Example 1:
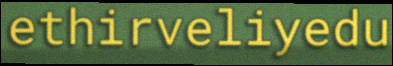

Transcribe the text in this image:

ethirveliyedu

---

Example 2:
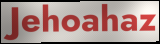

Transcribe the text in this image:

Jehoahaz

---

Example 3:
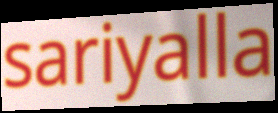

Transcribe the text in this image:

sariyalla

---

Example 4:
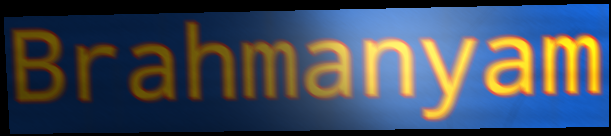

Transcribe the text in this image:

Brahmanyam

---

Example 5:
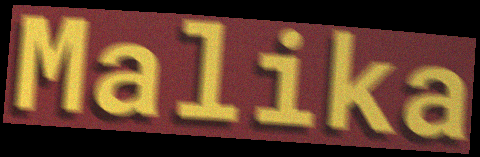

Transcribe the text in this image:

Malika